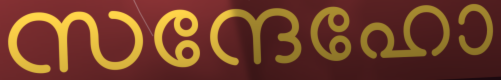
സന്ദേഹോ